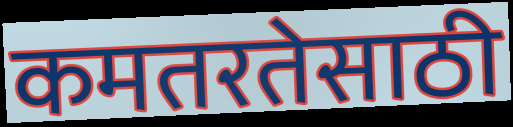
कमतरतेसाठी